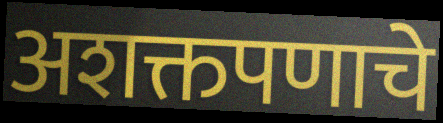
अशक्तपणाचे